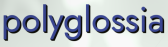
polyglossia